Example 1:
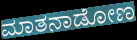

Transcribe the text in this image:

ಮಾತನಾಡೋಣ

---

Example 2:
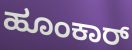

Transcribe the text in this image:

ಹೂಂಕಾರ್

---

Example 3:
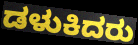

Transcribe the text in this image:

ಡಳುಕಿದರು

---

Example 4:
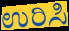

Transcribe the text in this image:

ಉರಿಸಿ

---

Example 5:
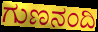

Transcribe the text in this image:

ಗುಣನಂದಿ